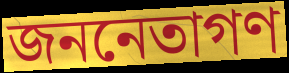
জননেতাগণ